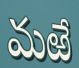
మఱే